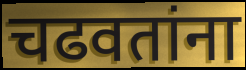
चढवतांना